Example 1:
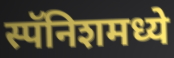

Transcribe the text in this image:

स्पॅनिशमध्ये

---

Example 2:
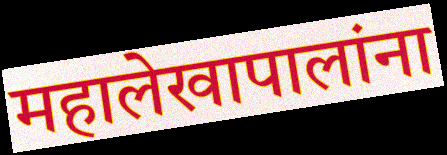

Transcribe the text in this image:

महालेखापालांना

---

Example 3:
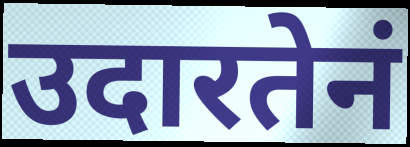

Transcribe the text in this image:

उदारतेनं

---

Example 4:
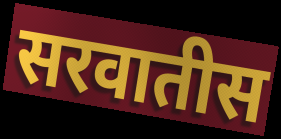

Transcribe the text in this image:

सरवातीस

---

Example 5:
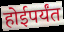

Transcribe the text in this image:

होईपर्यंत